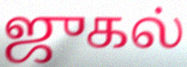
ஜுகல்